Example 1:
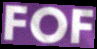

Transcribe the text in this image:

FOF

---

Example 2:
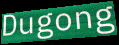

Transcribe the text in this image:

Dugong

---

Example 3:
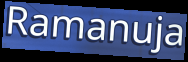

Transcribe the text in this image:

Ramanuja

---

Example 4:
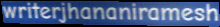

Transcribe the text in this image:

writerjhananiramesh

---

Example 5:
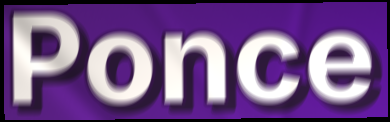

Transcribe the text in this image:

Ponce